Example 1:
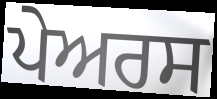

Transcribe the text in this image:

ਪੇਅਰਸ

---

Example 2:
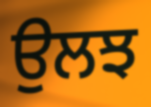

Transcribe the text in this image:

ਉਲਝ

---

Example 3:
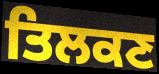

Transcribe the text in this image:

ਤਿਲਕਣ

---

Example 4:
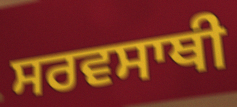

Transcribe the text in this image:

ਸਰਵਸਾਥੀ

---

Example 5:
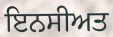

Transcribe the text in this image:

ਇਨਸੀਅਤ